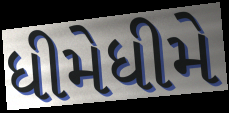
ધીમેધીમે